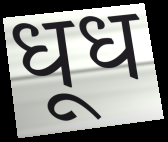
धूध